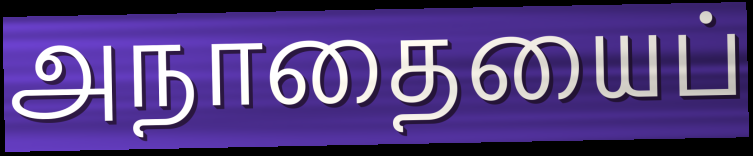
அநாதையைப்